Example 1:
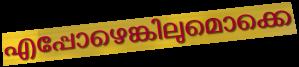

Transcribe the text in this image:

എപ്പോഴെങ്കിലുമൊക്കെ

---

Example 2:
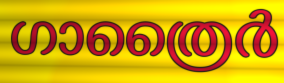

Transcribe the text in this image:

ഗാത്രൈർ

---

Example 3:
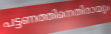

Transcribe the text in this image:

പട്ടണത്തിനെതിരായും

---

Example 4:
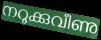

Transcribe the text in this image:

നറുക്കുവീണു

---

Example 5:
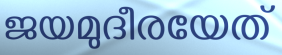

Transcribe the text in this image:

ജയമുദീരയേത്